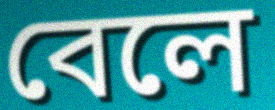
বেলে